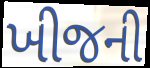
ખીજની